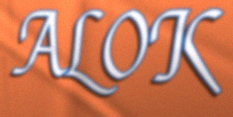
ALOK